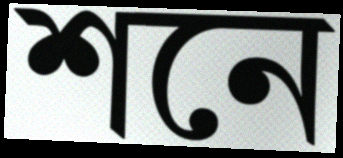
শনে